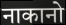
नाकानो